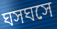
ঘসঘসে